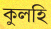
কুলহি